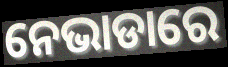
ନେଭାଡାରେ